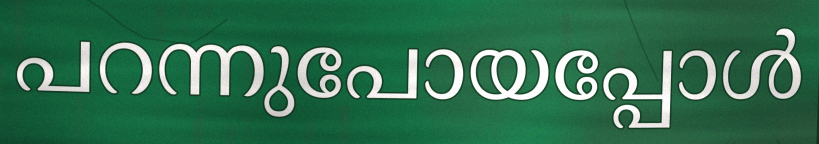
പറന്നുപോയപ്പോൾ